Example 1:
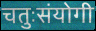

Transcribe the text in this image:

चतुःसंयोगी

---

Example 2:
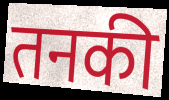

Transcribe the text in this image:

तनकी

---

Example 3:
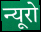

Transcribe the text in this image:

न्यूरो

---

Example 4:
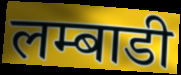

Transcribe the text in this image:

लम्बाडी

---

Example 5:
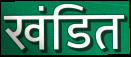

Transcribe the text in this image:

खंडित